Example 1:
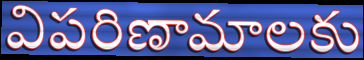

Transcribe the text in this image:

విపరిణామాలకు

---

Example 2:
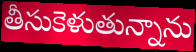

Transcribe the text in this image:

తీసుకెళుతున్నాను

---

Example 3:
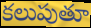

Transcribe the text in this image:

కలుపుతూ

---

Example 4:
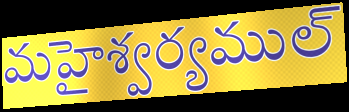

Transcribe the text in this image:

మహైశ్వర్యముల్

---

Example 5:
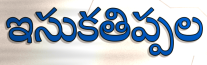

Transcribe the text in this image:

ఇసుకతిప్పల